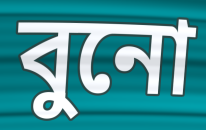
বুনো